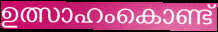
ഉത്സാഹംകൊണ്ട്